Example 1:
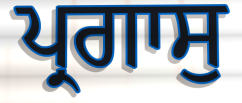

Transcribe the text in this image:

ਪ੍ਰਗਾਸੁ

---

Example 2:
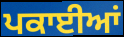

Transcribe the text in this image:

ਪਕਾਈਆਂ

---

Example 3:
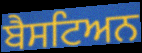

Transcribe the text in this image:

ਬੈਸਟਿਅਨ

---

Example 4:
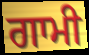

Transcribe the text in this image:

ਗਾਮੀ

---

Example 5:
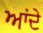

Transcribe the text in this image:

ਆਂਦੇ